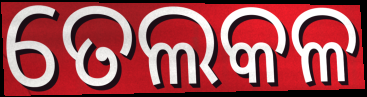
ତେଲକଳ